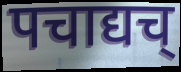
पचाद्यच्